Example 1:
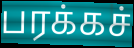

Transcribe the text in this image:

பரக்கச்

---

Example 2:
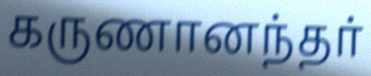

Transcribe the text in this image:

கருணானந்தர்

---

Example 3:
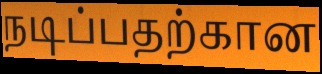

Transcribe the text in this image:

நடிப்பதற்கான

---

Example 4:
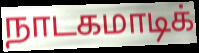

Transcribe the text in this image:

நாடகமாடிக்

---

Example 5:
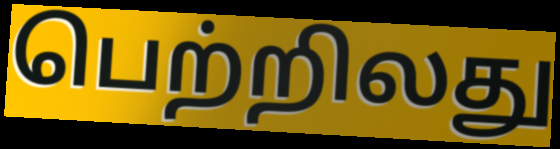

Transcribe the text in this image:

பெற்றிலது